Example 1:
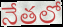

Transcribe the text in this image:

నేతలో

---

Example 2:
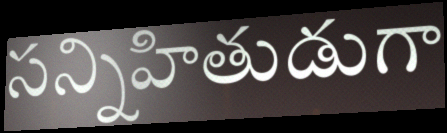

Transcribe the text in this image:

సన్నిహితుడుగా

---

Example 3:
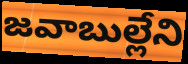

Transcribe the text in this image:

జవాబుల్లేని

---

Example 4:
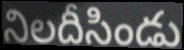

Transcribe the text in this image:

నిలదీసిండు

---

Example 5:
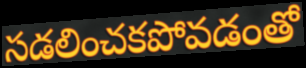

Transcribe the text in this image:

సడలించకపోవడంతో